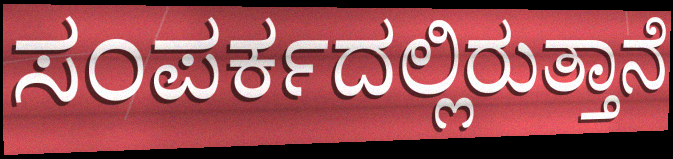
ಸಂಪರ್ಕದಲ್ಲಿರುತ್ತಾನೆ